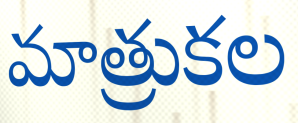
మాత్రుకల